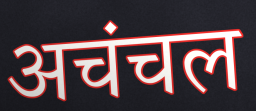
अचंचल